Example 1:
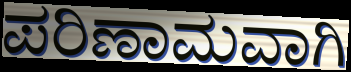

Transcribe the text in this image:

ಪರಿಣಾಮವಾಗಿ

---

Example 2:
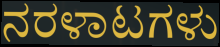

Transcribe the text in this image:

ನರಳಾಟಗಳು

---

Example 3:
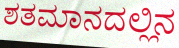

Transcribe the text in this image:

ಶತಮಾನದಲ್ಲಿನ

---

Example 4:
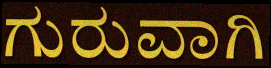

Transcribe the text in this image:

ಗುರುವಾಗಿ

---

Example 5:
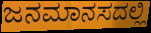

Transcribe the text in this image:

ಜನಮಾನಸದಲ್ಲಿ